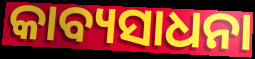
କାବ୍ୟସାଧନା